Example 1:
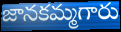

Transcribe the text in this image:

జానకమ్మగారు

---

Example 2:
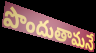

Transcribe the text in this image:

పొందుతామనే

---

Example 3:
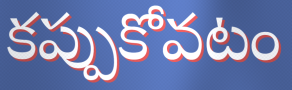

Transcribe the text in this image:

కప్పుకోవటం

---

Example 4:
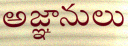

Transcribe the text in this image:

అజ్ఞానులు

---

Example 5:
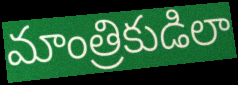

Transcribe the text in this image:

మాంత్రికుడిలా